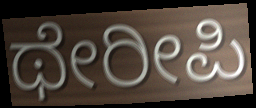
ಥೇರೀಪಿ